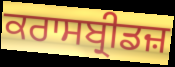
ਕਰਾਸਬ੍ਰੀਡਜ਼